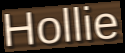
Hollie